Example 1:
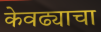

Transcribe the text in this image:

केवढ्याचा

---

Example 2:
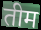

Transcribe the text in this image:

तीम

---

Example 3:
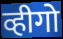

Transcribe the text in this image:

व्हीगो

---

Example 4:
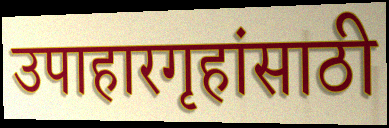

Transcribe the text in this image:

उपाहारगृहांसाठी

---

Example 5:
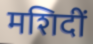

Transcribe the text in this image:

मशिदीं